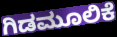
ಗಿಡಮೂಲಿಕೆ